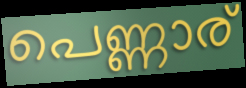
പെണ്ണാര്